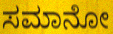
ಸಮಾನೋ